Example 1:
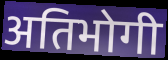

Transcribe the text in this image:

अतिभोगी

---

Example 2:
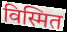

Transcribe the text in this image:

विस्मित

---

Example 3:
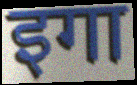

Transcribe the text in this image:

इगा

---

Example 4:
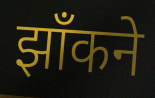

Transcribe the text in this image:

झाँकने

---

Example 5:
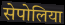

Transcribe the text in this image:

सेपोलिया